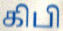
கிபி